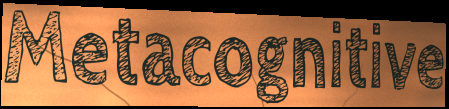
Metacognitive